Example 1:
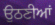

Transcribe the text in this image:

ਉਠਣੀਆਂ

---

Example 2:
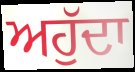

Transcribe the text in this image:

ਅਹੁੱਦਾ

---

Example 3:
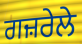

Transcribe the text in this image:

ਗਜ਼ਰੇਲੇ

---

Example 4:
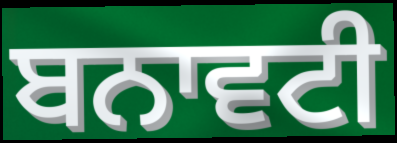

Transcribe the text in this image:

ਬਨਾਵਟੀ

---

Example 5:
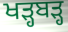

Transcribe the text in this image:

ਖੜ੍ਹਬੜ੍ਹ